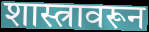
शास्त्रावरून